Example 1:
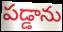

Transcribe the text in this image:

పడ్డాను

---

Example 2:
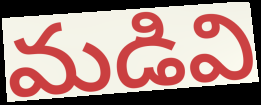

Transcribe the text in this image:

మడివి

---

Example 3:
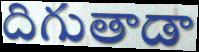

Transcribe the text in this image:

దిగుతాడా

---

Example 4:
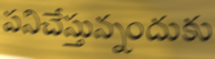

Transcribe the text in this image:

పనిచేస్తున్నందుకు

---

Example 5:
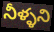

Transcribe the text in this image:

నీళ్ళని